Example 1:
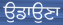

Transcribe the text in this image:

ਉਡਾਉਣਾ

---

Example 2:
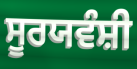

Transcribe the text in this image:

ਸੂਰਯਵੰਸ਼ੀ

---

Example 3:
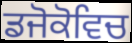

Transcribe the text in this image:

ਡਜੋਕੋਵਿਚ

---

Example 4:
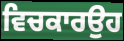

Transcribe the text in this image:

ਵਿਚਕਾਰਉਹ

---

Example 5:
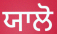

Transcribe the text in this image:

ਯਾਲੋ